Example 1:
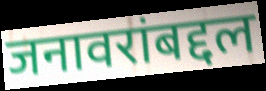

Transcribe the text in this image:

जनावरांबद्दल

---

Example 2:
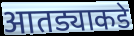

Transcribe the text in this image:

आतड्याकडे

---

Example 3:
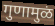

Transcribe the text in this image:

गुणामुळं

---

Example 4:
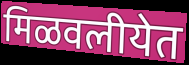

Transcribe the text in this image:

मिळवलीयेत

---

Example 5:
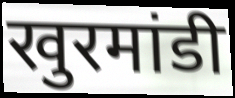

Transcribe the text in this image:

खुरमांडी